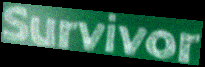
Survivor